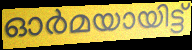
ഓർമയായിട്ട്